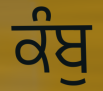
ਕੰਬੁ